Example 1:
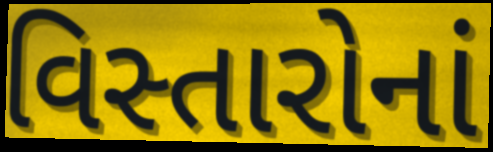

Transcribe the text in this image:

વિસ્તારોનાં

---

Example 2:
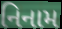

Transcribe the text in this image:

નિનામ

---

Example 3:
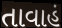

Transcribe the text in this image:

તાવાહં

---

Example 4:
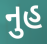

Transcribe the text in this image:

નુહ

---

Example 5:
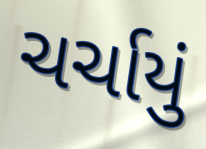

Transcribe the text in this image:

ચર્ચાયું